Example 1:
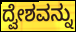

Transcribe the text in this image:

ದ್ವೇಶವನ್ನು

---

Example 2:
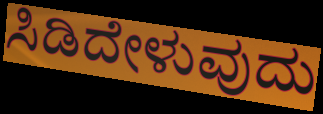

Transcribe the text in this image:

ಸಿಡಿದೇಳುವುದು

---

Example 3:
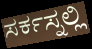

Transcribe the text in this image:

ಸರ್ಕಸ್ನಲ್ಲಿ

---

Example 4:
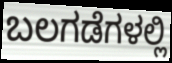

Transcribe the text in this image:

ಬಲಗಡೆಗಳಲ್ಲಿ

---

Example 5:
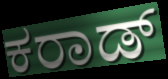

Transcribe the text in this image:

ಕರಾಡ್